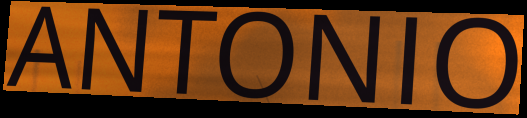
ANTONIO